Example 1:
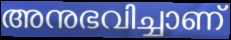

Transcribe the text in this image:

അനുഭവിച്ചാണ്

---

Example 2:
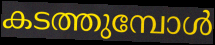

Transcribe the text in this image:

കടത്തുമ്പോൾ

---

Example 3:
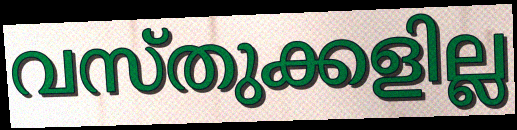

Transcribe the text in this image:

വസ്തുക്കളില്ല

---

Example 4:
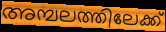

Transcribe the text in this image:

അമ്പലത്തിലേക്ക്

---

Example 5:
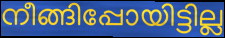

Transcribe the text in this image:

നീങ്ങിപ്പോയിട്ടില്ല